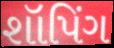
શૉપિંગ